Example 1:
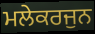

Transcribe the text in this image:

ਮਲੇਕਰਜੁਨ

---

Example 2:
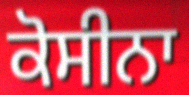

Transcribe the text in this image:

ਕੋਸੀਨਾ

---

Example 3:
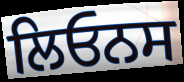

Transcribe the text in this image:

ਲਿਓਨਸ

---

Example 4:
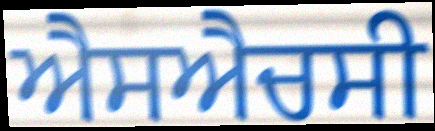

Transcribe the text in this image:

ਐਸਐਚਸੀ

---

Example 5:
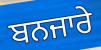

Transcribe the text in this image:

ਬਨਜਾਰੇ